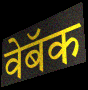
वेबॅक